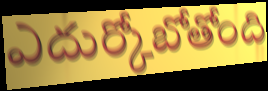
ఎదుర్కోబోతోంది